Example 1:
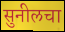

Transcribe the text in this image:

सुनीलचा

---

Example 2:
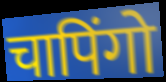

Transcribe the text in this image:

चापिंगो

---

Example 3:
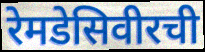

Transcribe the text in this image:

रेमडेसिवीरची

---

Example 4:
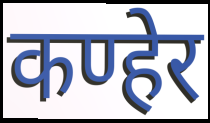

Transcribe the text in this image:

कण्हेर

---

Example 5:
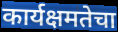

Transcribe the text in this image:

कार्यक्षमतेचा